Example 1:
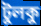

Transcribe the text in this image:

টুলকু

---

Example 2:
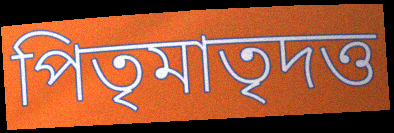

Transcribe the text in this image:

পিতৃমাতৃদত্ত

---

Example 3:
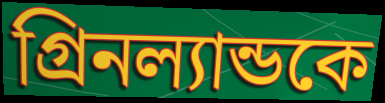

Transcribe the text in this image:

গ্রিনল্যান্ডকে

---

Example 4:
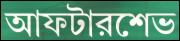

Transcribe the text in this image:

আফটারশেভ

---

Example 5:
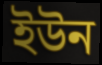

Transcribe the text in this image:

ইউন